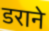
डराने